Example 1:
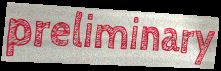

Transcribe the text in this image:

preliminary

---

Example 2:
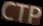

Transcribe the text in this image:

CTP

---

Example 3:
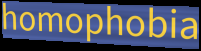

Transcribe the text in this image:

homophobia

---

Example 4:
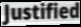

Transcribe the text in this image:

Justified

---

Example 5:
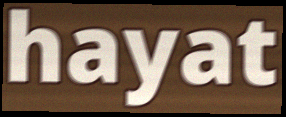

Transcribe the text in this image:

hayat